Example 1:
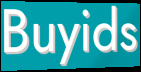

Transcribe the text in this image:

Buyids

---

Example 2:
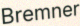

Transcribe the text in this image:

Bremner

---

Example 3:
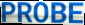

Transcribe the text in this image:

PROBE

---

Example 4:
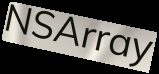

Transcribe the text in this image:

NSArray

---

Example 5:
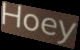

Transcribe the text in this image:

Hoey